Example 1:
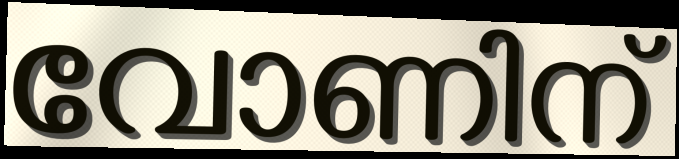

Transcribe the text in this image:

വോണിന്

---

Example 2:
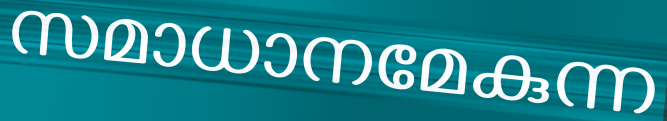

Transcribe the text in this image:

സമാധാനമേകുന്ന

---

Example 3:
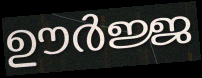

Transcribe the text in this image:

ഊർജ്ജ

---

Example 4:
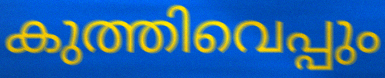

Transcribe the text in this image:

കുത്തിവെപ്പും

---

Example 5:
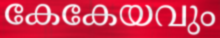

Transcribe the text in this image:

കേകേയവും